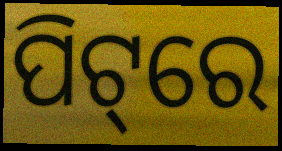
ପିଟ୍‌ରେ